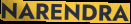
NARENDRA